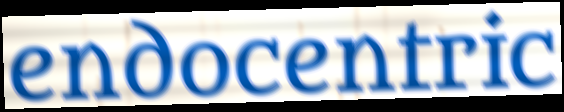
endocentric